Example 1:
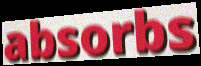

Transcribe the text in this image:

absorbs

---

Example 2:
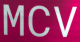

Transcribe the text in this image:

MCV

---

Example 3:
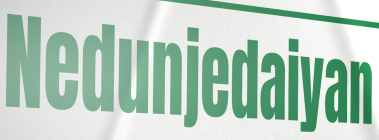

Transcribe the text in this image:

Nedunjedaiyan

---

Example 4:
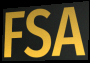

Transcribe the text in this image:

FSA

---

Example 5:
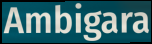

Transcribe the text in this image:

Ambigara